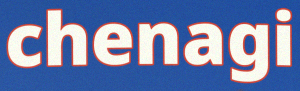
chenagi